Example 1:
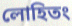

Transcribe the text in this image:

লোহিতং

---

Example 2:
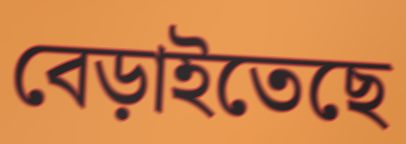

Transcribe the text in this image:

বেড়াইতেছে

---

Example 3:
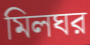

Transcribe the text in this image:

মিলঘর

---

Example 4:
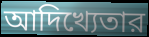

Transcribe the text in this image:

আদিখ্যেতার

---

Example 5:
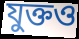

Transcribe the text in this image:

যুক্তও